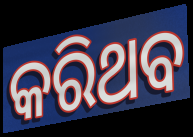
କରିଥବ